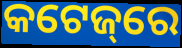
କଟେଜ୍‌ରେ